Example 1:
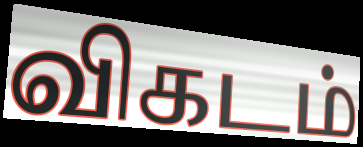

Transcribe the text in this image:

விகடம்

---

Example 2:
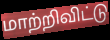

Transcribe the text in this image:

மாற்றிவிட்டு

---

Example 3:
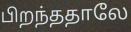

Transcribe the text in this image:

பிறந்ததாலே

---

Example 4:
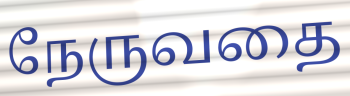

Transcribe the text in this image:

நேருவதை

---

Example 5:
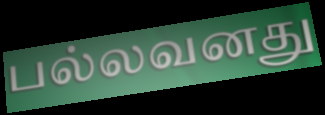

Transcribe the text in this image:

பல்லவனது